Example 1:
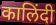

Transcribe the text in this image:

कालिंदी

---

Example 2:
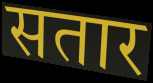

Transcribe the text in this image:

सतार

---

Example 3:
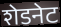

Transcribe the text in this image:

शेडनेट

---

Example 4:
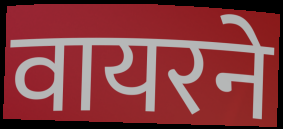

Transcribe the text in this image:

वायरने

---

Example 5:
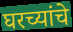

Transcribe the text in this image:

घरच्यांचे